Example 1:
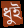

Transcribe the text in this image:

ধুই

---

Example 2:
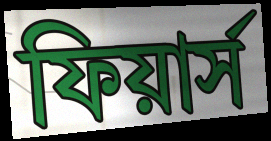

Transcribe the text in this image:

ফিয়ার্স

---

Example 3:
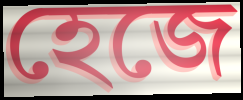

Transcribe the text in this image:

হেজে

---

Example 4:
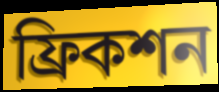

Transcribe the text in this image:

ফ্রিকশন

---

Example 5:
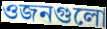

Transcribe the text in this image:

ওজনগুলো